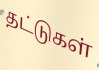
தட்டுகள்